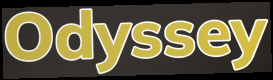
Odyssey